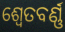
ଶ୍ୱେତବର୍ଣ୍ଣ